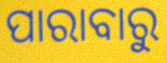
ପାରାବାରୁ